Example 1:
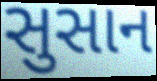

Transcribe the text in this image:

સુસાન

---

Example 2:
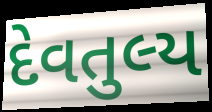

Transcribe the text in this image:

દેવતુલ્ય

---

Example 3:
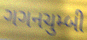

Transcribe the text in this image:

ગગનચુમ્બી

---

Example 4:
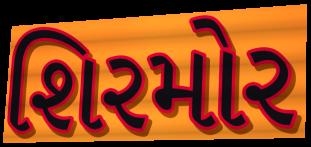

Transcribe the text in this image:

શિરમોર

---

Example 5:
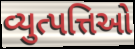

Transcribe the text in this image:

વ્યુત્પત્તિઓ